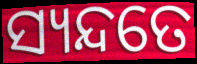
ସ୍ଯନ୍ଦତେ